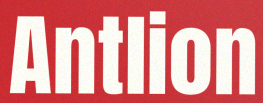
Antlion